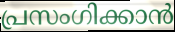
പ്രസംഗിക്കാൻ